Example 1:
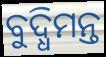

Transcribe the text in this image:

ବୁଦ୍ଧିମନ୍ତ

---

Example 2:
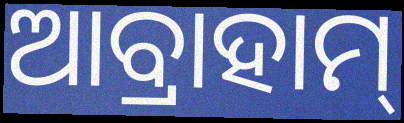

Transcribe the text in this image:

ଆବ୍ରାହାମ୍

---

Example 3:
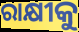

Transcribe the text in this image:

ରାକ୍ଷୀକୁ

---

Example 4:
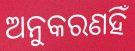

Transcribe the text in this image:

ଅନୁକରଣହିଁ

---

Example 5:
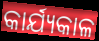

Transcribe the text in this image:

କାର୍ଯ୍ୟକାଳ